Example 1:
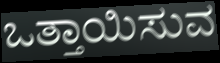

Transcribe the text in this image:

ಒತ್ತಾಯಿಸುವ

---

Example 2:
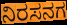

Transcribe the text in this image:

ನಿರಸನಗ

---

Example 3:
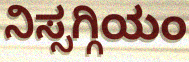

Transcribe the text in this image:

ನಿಸ್ಸಗ್ಗಿಯಂ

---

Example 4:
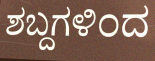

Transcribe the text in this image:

ಶಬ್ದಗಳಿಂದ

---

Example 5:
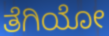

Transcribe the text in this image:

ತೆಗಿಯೋ